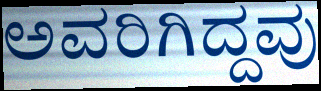
ಅವರಿಗಿದ್ದವು